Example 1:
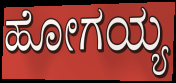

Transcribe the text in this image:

ಹೋಗಯ್ಯ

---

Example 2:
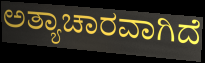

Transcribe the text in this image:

ಅತ್ಯಾಚಾರವಾಗಿದೆ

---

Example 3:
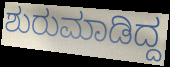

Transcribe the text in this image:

ಶುರುಮಾಡಿದ್ದ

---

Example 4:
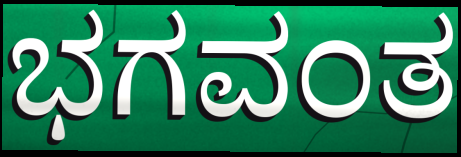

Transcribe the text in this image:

ಭಗವಂತ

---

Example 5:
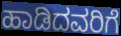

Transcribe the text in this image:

ಹಾಡಿದವರಿಗೆ